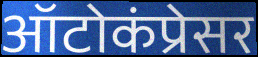
ऑटोकंप्रेसर